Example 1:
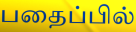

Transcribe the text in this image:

பதைப்பில்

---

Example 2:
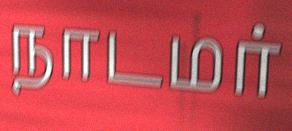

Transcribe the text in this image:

நாடமர்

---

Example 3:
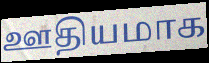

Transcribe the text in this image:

ஊதியமாக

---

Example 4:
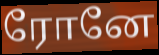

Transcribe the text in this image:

ரோனே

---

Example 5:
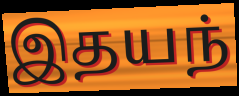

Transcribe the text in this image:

இதயந்